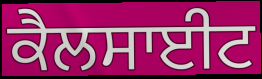
ਕੈਲਸਾਈਟ